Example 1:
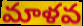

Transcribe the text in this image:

మాళవ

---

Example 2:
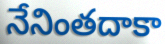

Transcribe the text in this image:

నేనింతదాకా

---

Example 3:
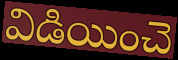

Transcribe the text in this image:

విడియించె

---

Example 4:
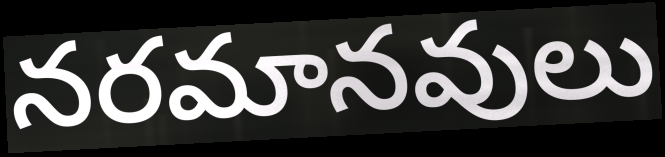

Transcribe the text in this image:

నరమానవులు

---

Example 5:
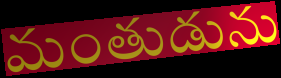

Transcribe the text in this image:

మంతుడును